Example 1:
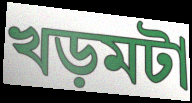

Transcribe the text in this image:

খড়মটা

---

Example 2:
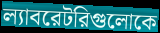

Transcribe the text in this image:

ল্যাবরেটরিগুলোকে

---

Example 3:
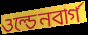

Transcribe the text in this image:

ওল্ডেনবার্গ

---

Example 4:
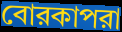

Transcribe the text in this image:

বোরকাপরা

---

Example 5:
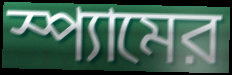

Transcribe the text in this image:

স্প্যামের